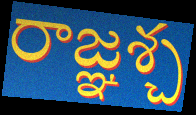
రాజ్ఞశ్చ